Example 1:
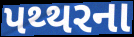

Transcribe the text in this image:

પથ્થરના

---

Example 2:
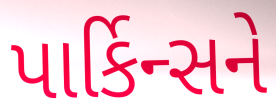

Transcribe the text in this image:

પાર્કિન્સને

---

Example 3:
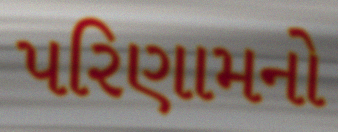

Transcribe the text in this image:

પરિણામનો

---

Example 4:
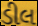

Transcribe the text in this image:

ડીલ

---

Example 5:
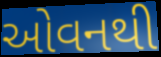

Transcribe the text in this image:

ઓવનથી